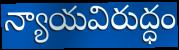
న్యాయవిరుద్ధం